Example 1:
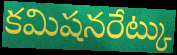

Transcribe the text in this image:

కమిషనరేట్కు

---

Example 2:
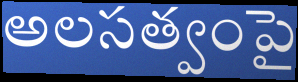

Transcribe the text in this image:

అలసత్వంపై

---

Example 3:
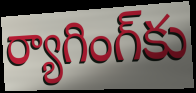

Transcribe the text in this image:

ర్యాగింగ్‌కు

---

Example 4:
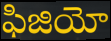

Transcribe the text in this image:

ఫిజియో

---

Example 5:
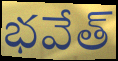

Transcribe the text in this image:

భవేత్